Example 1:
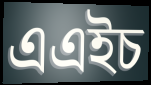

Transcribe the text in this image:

এএইচ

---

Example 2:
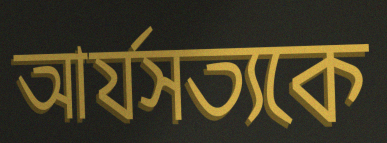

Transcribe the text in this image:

আর্যসত্যকে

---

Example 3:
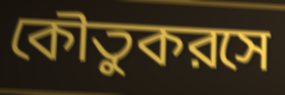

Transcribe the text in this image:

কৌতুকরসে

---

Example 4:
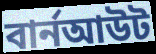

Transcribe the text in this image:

বার্নআউট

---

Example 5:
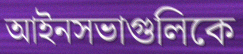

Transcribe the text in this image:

আইনসভাগুলিকে